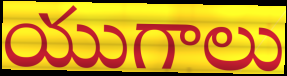
యుగాలు